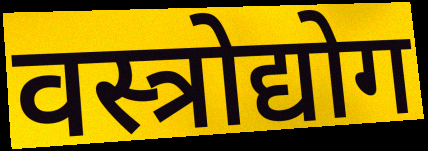
वस्त्रोद्योग